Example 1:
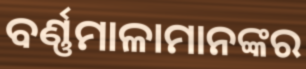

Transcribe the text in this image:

ବର୍ଣ୍ଣମାଳାମାନଙ୍କର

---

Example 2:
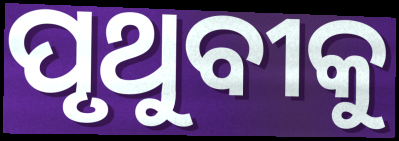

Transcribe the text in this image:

ପୃଥୁବୀକୁ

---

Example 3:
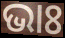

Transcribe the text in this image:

ଭାଃ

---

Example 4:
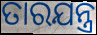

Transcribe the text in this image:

ତାରଯନ୍ତ୍ର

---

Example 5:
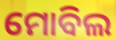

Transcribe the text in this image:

ମୋବିଲ